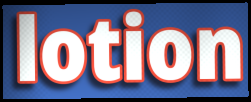
lotion